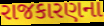
રાજકારણના